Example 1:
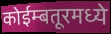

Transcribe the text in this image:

कोईम्बतूरमध्ये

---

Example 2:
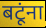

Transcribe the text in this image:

बटूंना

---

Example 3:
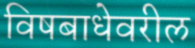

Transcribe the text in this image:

विषबाधेवरील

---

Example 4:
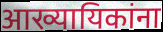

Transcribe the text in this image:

आख्यायिकांना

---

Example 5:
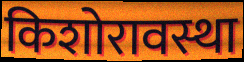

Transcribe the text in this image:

किशोरावस्था